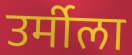
उर्मीला